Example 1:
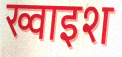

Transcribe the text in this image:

ख्वाइश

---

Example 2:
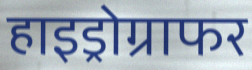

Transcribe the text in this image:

हाइड्रोग्राफर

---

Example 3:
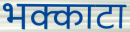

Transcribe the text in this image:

भक्काटा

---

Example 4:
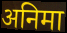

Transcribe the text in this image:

अनिमा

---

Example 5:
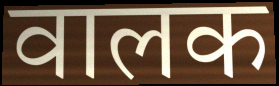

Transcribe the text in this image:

वालक